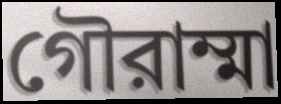
গৌরাম্মা